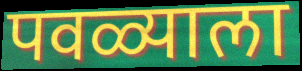
पवळ्याला